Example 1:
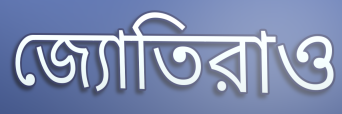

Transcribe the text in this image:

জ্যোতিরাও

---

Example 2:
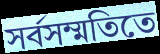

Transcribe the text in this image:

সর্বসম্মতিতে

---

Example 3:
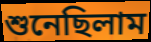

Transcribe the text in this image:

শুনেছিলাম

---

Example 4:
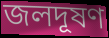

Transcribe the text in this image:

জলদূষণ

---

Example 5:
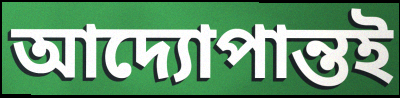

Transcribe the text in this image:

আদ্যোপান্তই